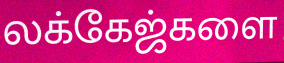
லக்கேஜ்களை